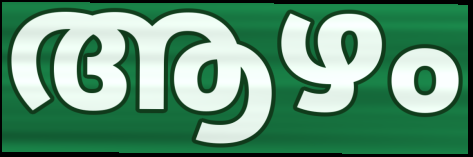
ആഴം